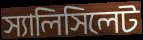
স্যালিসিলেট